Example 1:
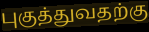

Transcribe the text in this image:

புகுத்துவதற்கு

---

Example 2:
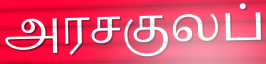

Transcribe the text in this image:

அரசகுலப்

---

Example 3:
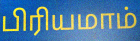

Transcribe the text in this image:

பிரியமாம்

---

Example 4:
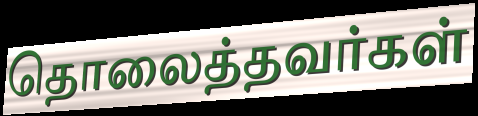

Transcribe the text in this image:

தொலைத்தவர்கள்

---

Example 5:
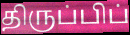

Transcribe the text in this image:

திருப்பிப்